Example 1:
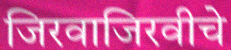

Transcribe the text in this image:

जिरवाजिरवीचे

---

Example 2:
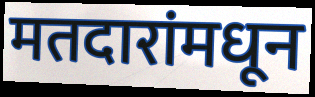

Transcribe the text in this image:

मतदारांमधून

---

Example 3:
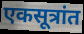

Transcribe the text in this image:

एकसूत्रांत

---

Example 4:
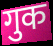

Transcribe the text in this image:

गुक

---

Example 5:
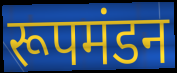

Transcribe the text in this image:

रूपमंडन